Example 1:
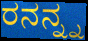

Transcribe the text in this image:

ರನನ್ನ್ನ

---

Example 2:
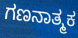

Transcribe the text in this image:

ಗಣನಾತ್ಮಕ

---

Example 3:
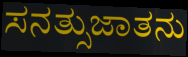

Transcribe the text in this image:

ಸನತ್ಸುಜಾತನು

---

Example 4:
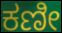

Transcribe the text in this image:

ಕಣೀ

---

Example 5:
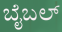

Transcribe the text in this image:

ಬೈಬಲ್